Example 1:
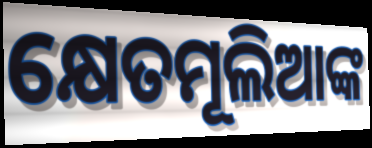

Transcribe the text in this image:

କ୍ଷେତମୂଲିଆଙ୍କ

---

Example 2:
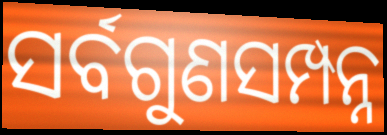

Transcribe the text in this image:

ସର୍ବଗୁଣସମ୍ପନ୍ନ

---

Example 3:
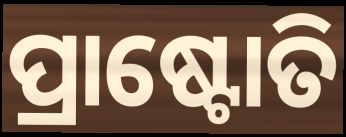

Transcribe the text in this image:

ପ୍ରାଷ୍ଟୋତି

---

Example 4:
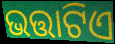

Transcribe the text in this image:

ଭତ୍ତାଟିଏ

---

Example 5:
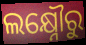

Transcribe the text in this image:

ଲକ୍ଷ୍ନୌରୁ